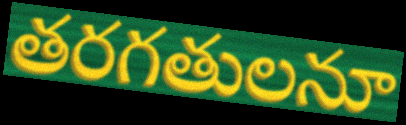
తరగతులనూ